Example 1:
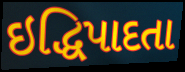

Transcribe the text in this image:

ઇદ્ધિપાદતા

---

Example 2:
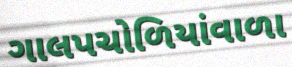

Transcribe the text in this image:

ગાલપચોળિયાંવાળા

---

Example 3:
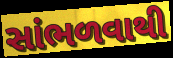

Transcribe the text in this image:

સાંભળવાથી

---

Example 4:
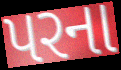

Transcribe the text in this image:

પરના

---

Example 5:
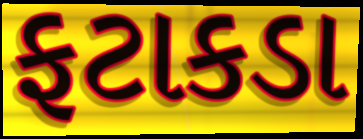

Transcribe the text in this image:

ફટાકડા